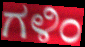
ಗಳಿಂ